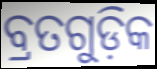
ବ୍ରତଗୁଡ଼ିକ